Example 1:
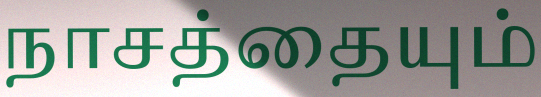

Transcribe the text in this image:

நாசத்தையும்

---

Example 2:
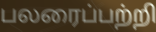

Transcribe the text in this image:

பலரைப்பற்றி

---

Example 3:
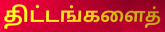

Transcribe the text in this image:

திட்டங்களைத்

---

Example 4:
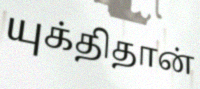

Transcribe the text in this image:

யுக்திதான்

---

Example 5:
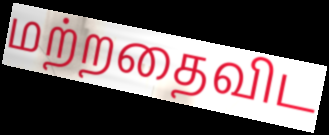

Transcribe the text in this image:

மற்றதைவிட